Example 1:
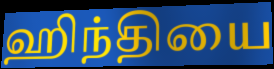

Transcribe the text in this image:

ஹிந்தியை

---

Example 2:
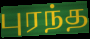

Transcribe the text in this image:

புரந்த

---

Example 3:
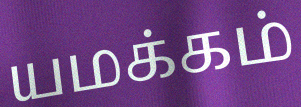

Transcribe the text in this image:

யமக்கம்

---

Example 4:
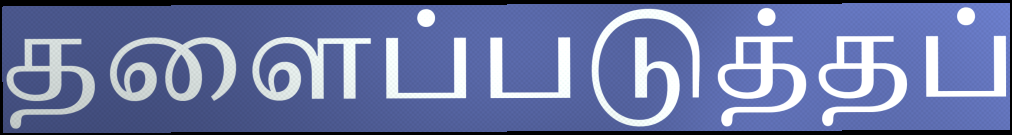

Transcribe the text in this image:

தளைப்படுத்தப்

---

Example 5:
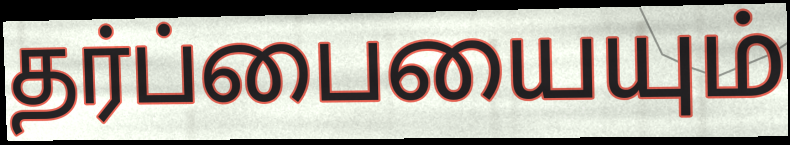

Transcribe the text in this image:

தர்ப்பையையும்